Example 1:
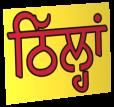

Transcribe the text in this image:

ਠਿੱਲ੍ਹਾਂ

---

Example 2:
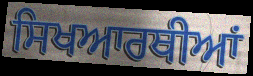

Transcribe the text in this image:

ਸਿਖਆਰਥੀਆਂ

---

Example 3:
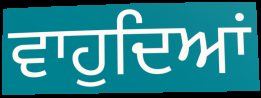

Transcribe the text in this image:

ਵਾਹੁਦਿਆਂ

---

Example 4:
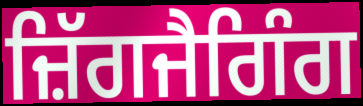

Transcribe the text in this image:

ਜ਼ਿੱਗਜੈਗਿੰਗ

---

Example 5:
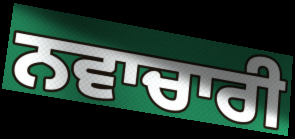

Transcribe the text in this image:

ਨਵਾਚਾਰੀ